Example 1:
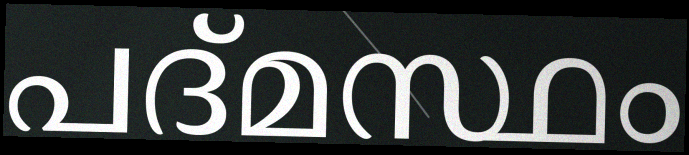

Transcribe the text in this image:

പദ്മസ്ഥം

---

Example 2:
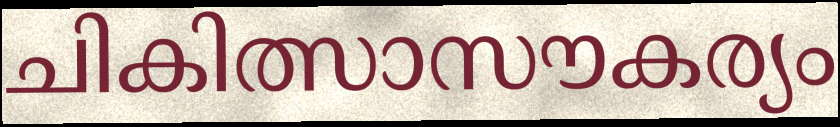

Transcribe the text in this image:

ചികിത്സാസൗകര്യം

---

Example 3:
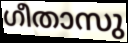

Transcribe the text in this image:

ഗീതാസു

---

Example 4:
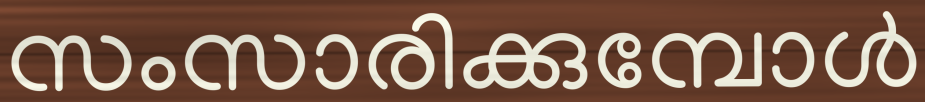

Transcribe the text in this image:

സംസാരിക്കുമ്പോൾ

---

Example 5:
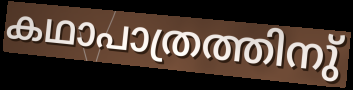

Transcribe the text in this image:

കഥാപാത്രത്തിനു്